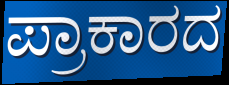
ಪ್ರಾಕಾರದ